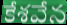
కేశవేన